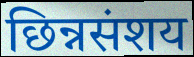
छिन्नसंशय